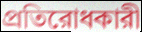
প্রতিরোধকারী